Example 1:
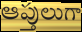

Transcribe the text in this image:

ఆప్తులుగా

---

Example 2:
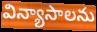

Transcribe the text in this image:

విన్యాసాలను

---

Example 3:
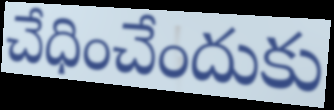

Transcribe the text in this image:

చేధించేందుకు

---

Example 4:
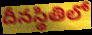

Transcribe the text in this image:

దీనస్థితిలో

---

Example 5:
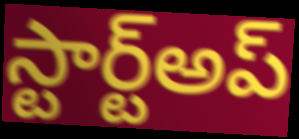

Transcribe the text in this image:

స్టార్ట్అప్